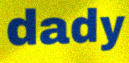
dady